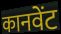
कानवेंट